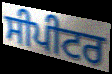
ਸੀਪੀਟਰ